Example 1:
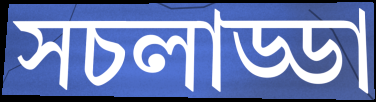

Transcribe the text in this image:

সচলাড্ডা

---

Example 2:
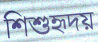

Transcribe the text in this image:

শিশুহৃদয়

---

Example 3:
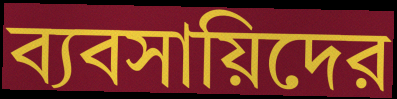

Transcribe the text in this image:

ব্যবসায়িদের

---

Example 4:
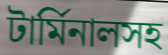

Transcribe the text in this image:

টার্মিনালসহ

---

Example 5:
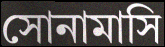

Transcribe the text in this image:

সোনামাসি